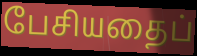
பேசியதைப்